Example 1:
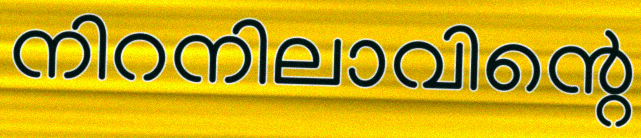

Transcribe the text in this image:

നിറനിലാവിന്റെ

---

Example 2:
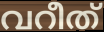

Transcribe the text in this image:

വറീത്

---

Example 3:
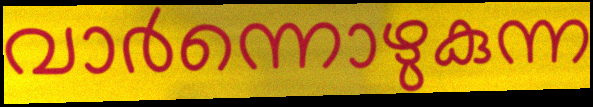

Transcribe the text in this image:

വാർന്നൊഴുകുന്ന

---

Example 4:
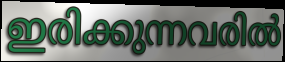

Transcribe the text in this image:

ഇരിക്കുന്നവരിൽ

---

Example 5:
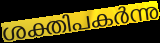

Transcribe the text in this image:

ശക്തിപകർന്നു